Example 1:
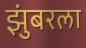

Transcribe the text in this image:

झुंबरला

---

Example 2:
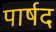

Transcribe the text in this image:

पार्षद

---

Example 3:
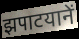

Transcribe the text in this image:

झपाटयानें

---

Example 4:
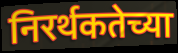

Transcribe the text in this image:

निरर्थकतेच्या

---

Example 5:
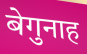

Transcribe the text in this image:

बेगुनाह